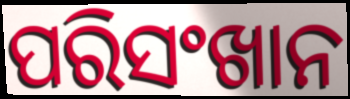
ପରିସଂଖାନ